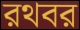
রথবর